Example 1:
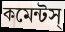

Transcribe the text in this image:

কমেন্টস্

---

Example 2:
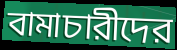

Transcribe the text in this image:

বামাচারীদের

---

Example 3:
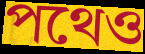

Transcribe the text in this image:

পথেও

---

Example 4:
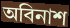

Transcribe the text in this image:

অবিনাশ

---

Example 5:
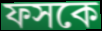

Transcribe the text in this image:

ফসকে